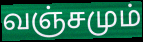
வஞ்சமும்